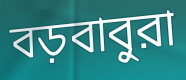
বড়বাবুরা